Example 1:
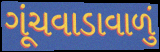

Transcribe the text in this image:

ગૂંચવાડાવાળું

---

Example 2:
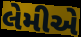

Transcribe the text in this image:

લેમીએ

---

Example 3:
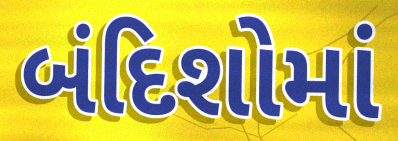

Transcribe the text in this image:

બંદિશોમાં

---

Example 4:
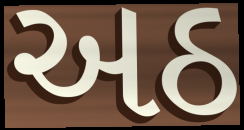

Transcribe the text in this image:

અઠ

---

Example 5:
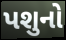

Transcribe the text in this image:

પશુનો